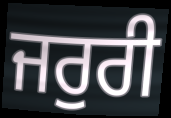
ਜਰੁਰੀ